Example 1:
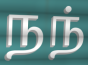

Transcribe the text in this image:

நந்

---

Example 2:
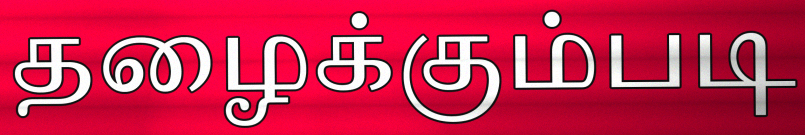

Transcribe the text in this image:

தழைக்கும்படி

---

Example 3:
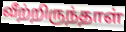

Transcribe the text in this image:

வீற்றிருந்தாள்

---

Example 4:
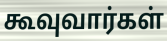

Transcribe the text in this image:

கூவுவார்கள்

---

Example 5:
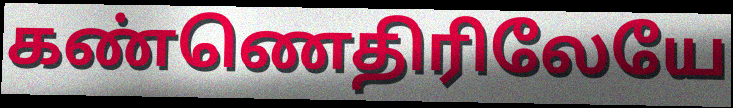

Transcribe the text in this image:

கண்ணெதிரிலேயே